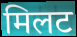
मिलट